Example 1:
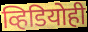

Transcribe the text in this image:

व्हिडियोही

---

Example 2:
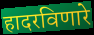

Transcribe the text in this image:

हादरविणारे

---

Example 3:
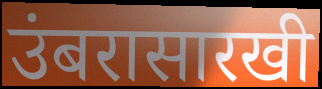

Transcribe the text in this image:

उंबरासारखी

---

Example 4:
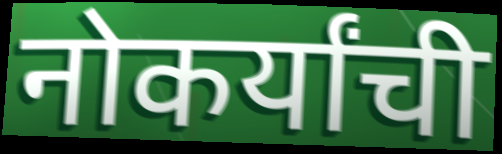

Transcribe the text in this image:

नोकर्यांची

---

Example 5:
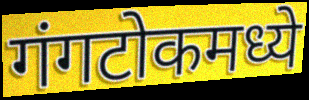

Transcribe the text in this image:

गंगटोकमध्ये